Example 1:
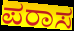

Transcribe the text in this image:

ಪರಾಸ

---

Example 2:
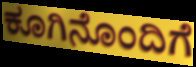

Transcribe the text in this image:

ಕೂಗಿನೊಂದಿಗೆ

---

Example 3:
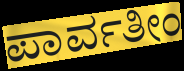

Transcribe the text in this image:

ಪಾರ್ವತೀಂ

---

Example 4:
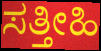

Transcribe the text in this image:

ಸತ್ತೀಹಿ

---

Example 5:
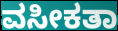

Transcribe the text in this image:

ವಸೀಕತಾ